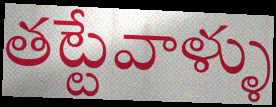
తట్టేవాళ్ళు